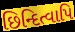
છિન્દિત્વાપિ